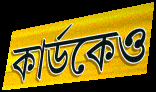
কার্ডকেও